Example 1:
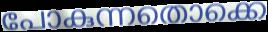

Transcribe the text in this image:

പോകുന്നതൊക്കെ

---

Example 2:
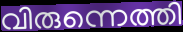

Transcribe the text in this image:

വിരുന്നെത്തി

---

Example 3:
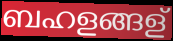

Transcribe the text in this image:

ബഹളങ്ങള്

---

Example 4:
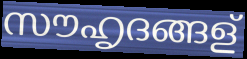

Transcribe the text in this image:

സൗഹൃദങ്ങള്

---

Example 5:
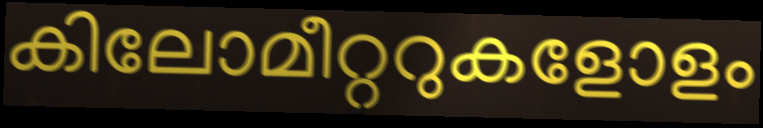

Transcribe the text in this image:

കിലോമീറ്ററുകളോളം